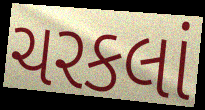
ચરકલાં